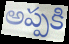
అప్పకి